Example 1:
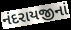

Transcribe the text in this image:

નંદરાયજીનાં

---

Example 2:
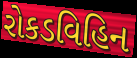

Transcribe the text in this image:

રોકડવિહિન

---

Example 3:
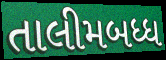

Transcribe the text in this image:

તાલીમબધ્ધ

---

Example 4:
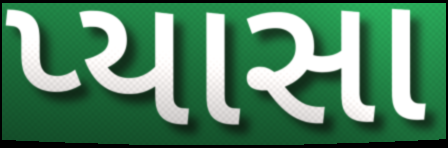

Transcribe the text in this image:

પ્યાસા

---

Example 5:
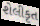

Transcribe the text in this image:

શેલીકૃત